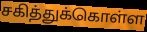
சகித்துக்கொள்ள